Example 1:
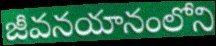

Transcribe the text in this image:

జీవనయానంలోని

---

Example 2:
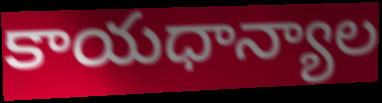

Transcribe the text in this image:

కాయధాన్యాల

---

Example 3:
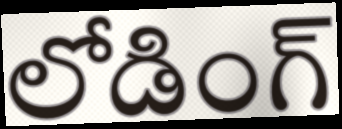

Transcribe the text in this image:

లోడింగ్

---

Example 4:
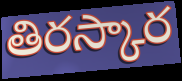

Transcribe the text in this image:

తిరస్కార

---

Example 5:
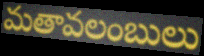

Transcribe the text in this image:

మతావలంబులు